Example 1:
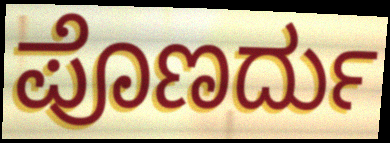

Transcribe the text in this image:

ಪೊಣರ್ದು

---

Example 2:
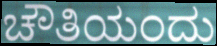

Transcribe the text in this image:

ಚೌತಿಯಂದು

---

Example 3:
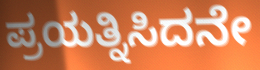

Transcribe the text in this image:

ಪ್ರಯತ್ನಿಸಿದನೇ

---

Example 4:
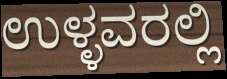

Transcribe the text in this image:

ಉಳ್ಳವರಲ್ಲಿ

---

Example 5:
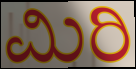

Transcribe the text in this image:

ಮಿರಿ